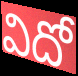
విదో